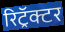
रिट्रॅक्टर